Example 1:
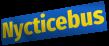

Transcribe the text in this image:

Nycticebus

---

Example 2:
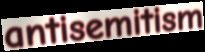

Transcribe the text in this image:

antisemitism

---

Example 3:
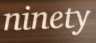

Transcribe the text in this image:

ninety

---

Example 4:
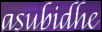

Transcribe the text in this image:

asubidhe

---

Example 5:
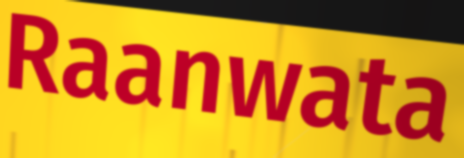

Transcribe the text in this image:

Raanwata